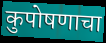
कुपोषणाचा